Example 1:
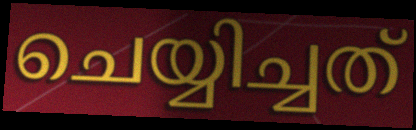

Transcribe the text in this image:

ചെയ്യിച്ചത്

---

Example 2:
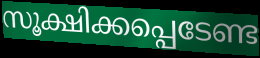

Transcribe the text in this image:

സൂക്ഷിക്കപ്പെടേണ്ട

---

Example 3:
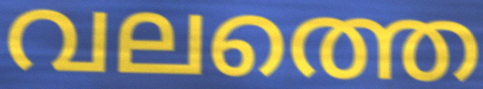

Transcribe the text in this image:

വലത്തെ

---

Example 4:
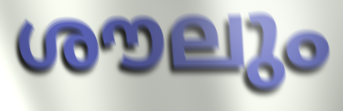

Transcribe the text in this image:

ശൗലും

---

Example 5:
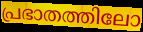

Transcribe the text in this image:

പ്രഭാതത്തിലോ